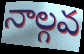
నాల్గవ